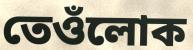
তেওঁলোক